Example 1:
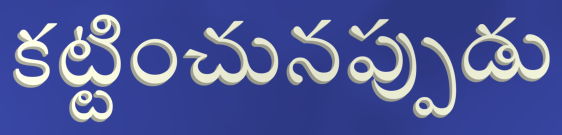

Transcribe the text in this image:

కట్టించునప్పుడు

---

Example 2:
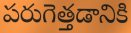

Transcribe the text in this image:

పరుగెత్తడానికి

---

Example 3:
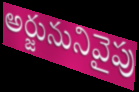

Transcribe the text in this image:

అర్జునునివైపు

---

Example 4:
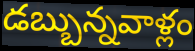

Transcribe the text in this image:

డబ్బున్నవాళ్లం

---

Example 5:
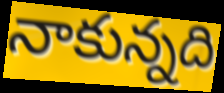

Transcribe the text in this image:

నాకున్నది